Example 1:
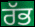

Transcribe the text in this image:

ਰੱਭ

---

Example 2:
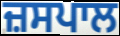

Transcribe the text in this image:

ਜ਼ਸਪਾਲ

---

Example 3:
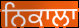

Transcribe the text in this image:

ਨਿਕਾਲਾ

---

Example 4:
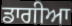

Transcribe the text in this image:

ਡਾਗੀਆ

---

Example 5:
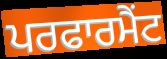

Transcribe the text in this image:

ਪਰਫਾਰਮੈਂਟ